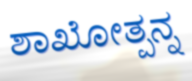
ಶಾಖೋತ್ಪನ್ನ